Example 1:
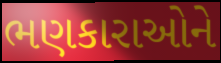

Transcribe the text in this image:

ભણકારાઓને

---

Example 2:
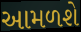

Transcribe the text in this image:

આમળશે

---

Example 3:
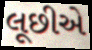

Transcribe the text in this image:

લૂછીએ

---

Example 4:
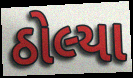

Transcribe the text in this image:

ઠોલ્યા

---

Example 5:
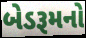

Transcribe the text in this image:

બેડરૂમનો